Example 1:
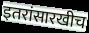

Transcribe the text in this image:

इतरांसारखीच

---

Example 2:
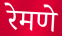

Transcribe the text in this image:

रेमणे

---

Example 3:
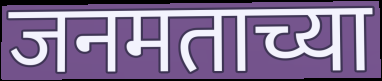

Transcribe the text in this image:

जनमताच्या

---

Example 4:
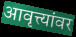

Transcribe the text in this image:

आवृत्त्यांवर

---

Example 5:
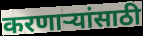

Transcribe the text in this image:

करणार्‍यांसाठी